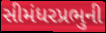
સીમંધરપ્રભુની